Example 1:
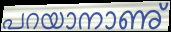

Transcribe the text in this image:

പറയാനാണു്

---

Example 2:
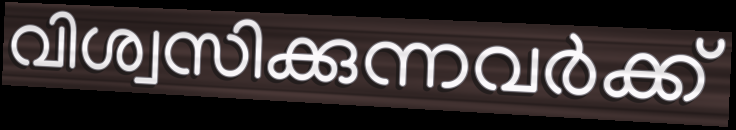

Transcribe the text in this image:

വിശ്വസിക്കുന്നവർക്ക്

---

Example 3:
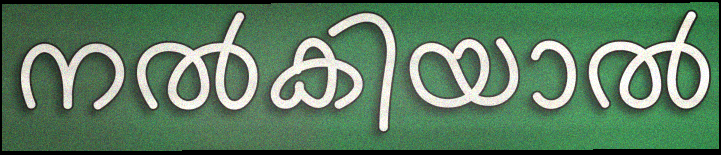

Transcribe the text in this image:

നൽകിയാൽ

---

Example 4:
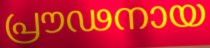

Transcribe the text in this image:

പ്രൗഢനായ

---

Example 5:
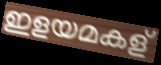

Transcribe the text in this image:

ഇളയമകള്